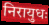
निरायुधः